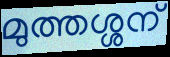
മുത്തശ്ശന്